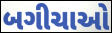
બગીચાઓ